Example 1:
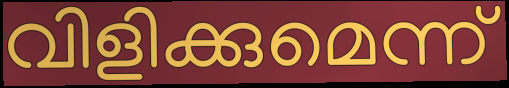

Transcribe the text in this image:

വിളിക്കുമെന്ന്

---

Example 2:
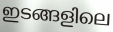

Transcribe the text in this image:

ഇടങ്ങളിലെ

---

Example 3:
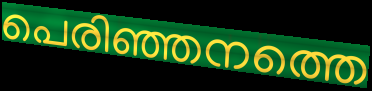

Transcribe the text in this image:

പെരിഞ്ഞനത്തെ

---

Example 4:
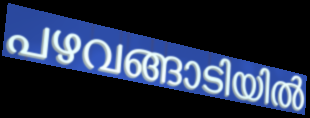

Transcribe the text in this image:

പഴവങ്ങാടിയിൽ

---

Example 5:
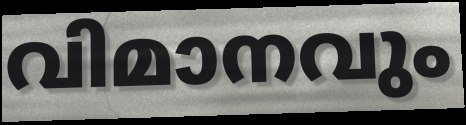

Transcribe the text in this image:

വിമാനവും